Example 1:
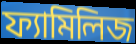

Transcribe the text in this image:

ফ্যামিলিজ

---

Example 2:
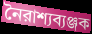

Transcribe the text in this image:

নৈরাশ্যব্যঞ্জক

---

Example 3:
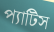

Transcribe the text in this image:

প্যাটিস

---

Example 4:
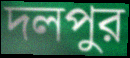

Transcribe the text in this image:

দলপুর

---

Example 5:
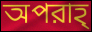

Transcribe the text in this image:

অপরাহ্